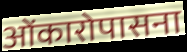
ओंकारोपासना